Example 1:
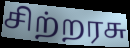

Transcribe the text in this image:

சிற்றரசு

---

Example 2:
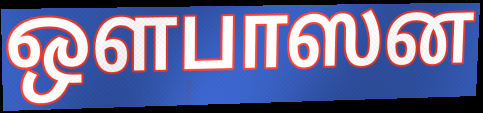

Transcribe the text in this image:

ஒளபாஸன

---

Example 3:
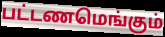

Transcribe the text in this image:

பட்டணமெங்கும்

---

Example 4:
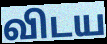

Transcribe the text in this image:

விடய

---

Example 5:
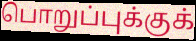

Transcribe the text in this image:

பொறுப்புக்குக்